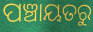
ପଞ୍ଚାୟତରୁ